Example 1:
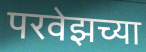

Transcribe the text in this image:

परवेझच्या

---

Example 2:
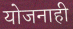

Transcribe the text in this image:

योजनाही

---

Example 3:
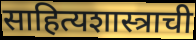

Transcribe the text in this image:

साहित्यशास्त्राची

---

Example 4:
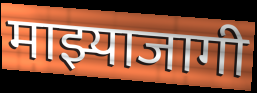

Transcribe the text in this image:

माझ्याजागी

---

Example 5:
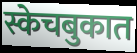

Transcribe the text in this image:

स्केचबुकात